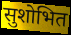
सुशोभित